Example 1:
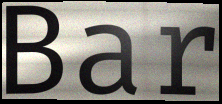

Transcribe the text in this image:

Bar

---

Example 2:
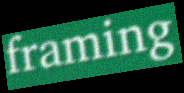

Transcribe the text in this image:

framing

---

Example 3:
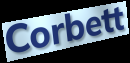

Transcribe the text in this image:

Corbett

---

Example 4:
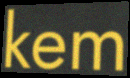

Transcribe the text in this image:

kem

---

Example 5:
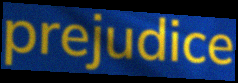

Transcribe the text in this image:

prejudice